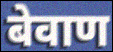
बेवाण